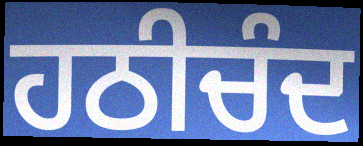
ਹਠੀਚੰਦ